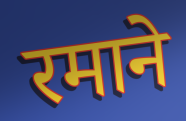
रमाने